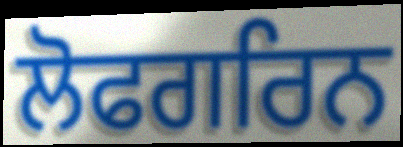
ਲੋਫਗਰਿਨ